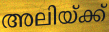
അലിയ്ക്ക്